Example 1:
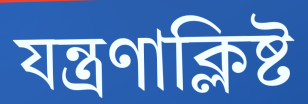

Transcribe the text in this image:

যন্ত্রণাক্লিষ্ট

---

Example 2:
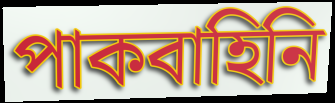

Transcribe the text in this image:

পাকবাহিনি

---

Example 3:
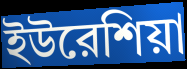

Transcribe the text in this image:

ইউরেশিয়া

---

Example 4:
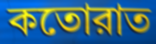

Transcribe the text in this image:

কতোরাত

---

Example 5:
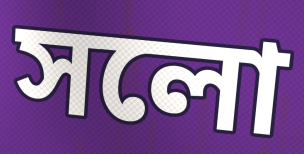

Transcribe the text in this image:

সলো